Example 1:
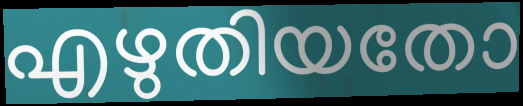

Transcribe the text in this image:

എഴുതിയതോ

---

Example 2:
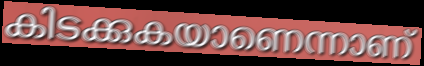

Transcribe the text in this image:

കിടക്കുകയാണെന്നാണ്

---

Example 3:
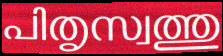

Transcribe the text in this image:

പിതൃസ്വത്തു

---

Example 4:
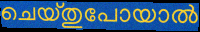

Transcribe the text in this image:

ചെയ്തുപോയാൽ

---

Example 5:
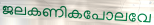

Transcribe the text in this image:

ജലകണികപോലവേ